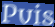
Puis